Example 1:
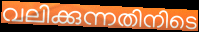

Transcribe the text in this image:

വലിക്കുന്നതിനിടെ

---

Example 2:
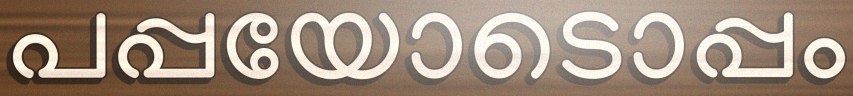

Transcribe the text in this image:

പപ്പയോടൊപ്പം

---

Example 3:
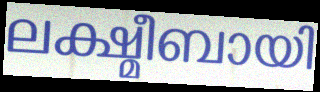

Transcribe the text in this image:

ലക്ഷ്മീബായി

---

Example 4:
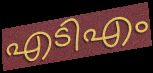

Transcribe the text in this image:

എടിഎം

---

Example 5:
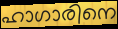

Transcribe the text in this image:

ഹാഗാരിനെ